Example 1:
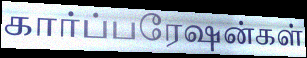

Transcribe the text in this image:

கார்ப்பரேஷன்கள்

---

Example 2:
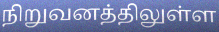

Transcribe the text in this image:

நிறுவனத்திலுள்ள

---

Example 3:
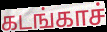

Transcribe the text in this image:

கடங்காச்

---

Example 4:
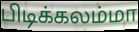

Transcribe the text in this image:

பிடிக்கலம்மா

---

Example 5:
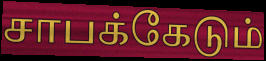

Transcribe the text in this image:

சாபக்கேடும்